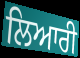
ਲਿਆਰੀ